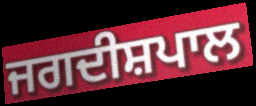
ਜਗਦੀਸ਼ਪਾਲ